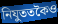
নিযুততকৈও